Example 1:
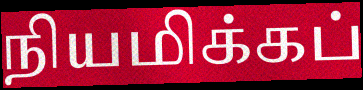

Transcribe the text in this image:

நியமிக்கப்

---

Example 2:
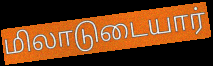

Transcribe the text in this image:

மிலாடுடையார்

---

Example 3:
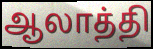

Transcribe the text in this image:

ஆலாத்தி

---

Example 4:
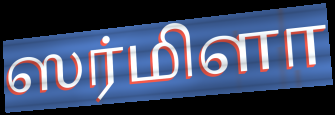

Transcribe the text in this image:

ஸர்மிளா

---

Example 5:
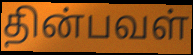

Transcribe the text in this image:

தின்பவள்